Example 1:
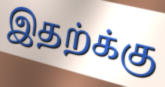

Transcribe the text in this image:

இதற்க்கு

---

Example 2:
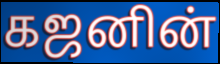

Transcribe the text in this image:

கஜனின்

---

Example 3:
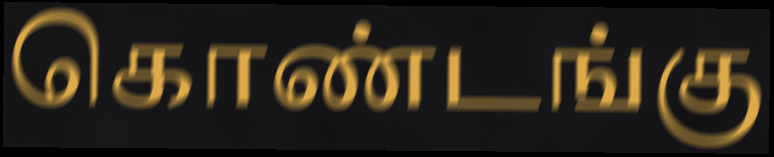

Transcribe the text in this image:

கொண்டங்கு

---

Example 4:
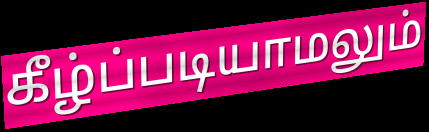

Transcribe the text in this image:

கீழ்ப்படியாமலும்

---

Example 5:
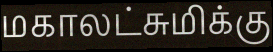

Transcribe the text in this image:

மகாலட்சுமிக்கு